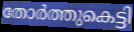
തോർത്തുകെട്ടി